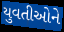
યુવતીઓને